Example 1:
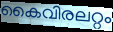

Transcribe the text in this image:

കൈവിരലറ്റം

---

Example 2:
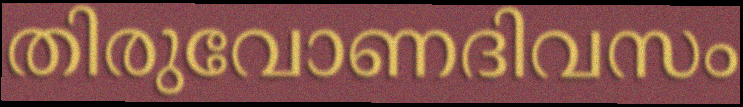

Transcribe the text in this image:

തിരുവോണദിവസം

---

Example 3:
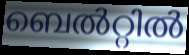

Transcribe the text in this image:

ബെൽറ്റിൽ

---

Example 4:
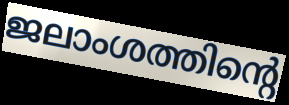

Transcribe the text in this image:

ജലാംശത്തിന്റെ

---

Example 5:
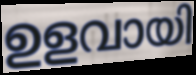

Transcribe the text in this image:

ഉളവായി